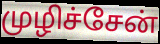
முழிச்சேன்